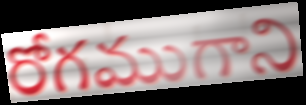
రోగముగాని